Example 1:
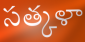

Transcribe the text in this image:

సత్కళా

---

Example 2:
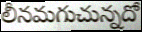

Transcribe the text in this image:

లీనమగుచున్నదో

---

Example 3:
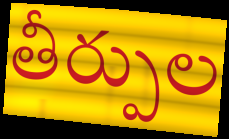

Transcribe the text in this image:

తీర్పుల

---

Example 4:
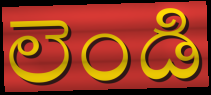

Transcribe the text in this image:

లెండి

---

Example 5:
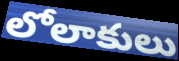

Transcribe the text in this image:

లోలాకులు